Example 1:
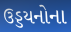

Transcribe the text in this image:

ઉડ્ડયનોના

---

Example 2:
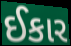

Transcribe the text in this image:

ઈકાર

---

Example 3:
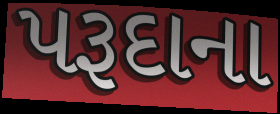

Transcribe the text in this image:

પરૂદાના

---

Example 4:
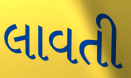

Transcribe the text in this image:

લાવતી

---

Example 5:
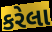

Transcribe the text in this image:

કરેલા